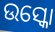
ଉସ୍କୋ